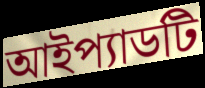
আইপ্যাডটি